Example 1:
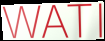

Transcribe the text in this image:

WATI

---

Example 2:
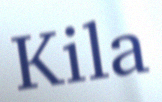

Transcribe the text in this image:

Kila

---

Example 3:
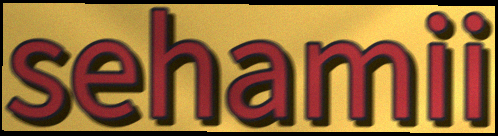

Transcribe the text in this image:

sehamii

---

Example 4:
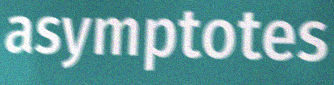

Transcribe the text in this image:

asymptotes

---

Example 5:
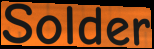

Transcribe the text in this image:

Solder